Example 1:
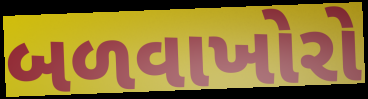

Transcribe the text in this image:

બળવાખોરો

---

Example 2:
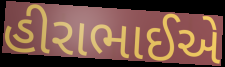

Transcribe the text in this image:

હીરાભાઈએ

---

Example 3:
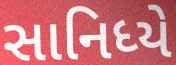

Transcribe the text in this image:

સાનિધ્યે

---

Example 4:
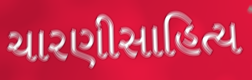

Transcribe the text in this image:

ચારણીસાહિત્ય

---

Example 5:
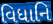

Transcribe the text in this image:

વિધાનિ